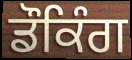
ਡੌਕਿੰਗ